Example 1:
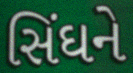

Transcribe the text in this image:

સિંઘને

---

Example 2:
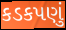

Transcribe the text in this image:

કડકપણું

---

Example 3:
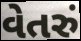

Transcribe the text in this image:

વેતરું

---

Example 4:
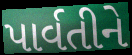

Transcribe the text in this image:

પાર્વતીને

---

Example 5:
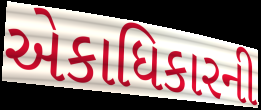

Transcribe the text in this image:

એકાધિકારની